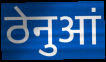
ठेनुआं